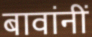
बावांनीं